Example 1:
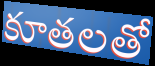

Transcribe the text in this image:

కూతలతో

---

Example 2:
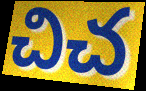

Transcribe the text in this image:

చిచ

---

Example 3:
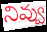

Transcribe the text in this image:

నివ్వు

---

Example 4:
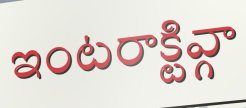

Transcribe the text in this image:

ఇంటరాక్టివ్గా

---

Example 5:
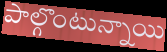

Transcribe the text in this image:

పాల్గొంటున్నాయి